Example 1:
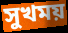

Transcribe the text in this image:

সুখময়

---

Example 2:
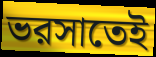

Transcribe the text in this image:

ভরসাতেই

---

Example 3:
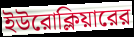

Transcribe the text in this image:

ইউরোক্লিয়ারের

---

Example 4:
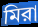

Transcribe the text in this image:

মিরা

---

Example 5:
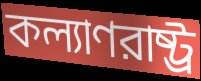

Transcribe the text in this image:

কল্যাণরাষ্ট্র